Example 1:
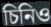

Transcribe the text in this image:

চিনিও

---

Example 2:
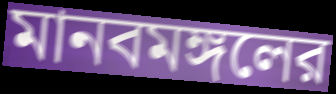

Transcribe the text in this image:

মানবমঙ্গলের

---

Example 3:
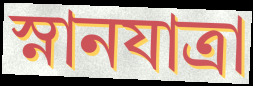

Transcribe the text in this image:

স্নানযাত্রা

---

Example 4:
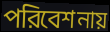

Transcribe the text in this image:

পরিবেশনায়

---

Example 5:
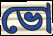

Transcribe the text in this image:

ভো